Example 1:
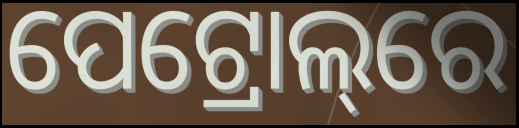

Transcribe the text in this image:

ପେଟ୍ରୋଲ୍‌ରେ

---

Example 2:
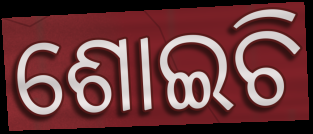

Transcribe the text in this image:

ଶୋଇଚି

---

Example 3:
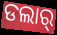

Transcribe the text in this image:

ଡଲାର୍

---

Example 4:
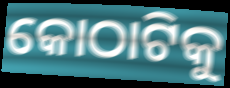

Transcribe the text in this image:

କୋଠାଟିକୁ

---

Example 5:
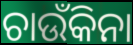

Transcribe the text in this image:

ଚାଉଁକିନା